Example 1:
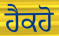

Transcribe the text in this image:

ਹੈਕਹੋ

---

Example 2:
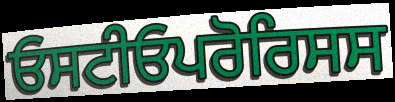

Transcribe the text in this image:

ਓਸਟੀਓਪਰੋਰਿਸਸ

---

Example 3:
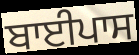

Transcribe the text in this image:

ਬਾਈਪਾਸ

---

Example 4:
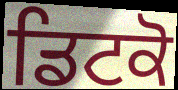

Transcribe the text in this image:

ਡਿਟਕੋ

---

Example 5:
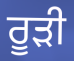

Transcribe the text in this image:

ਰੂੜੀ